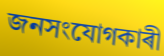
জনসংযোগকাৰী